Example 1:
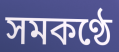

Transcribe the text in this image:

সমকণ্ঠে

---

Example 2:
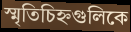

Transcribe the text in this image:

স্মৃতিচিহ্নগুলিকে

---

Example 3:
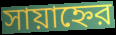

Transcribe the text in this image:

সায়াহ্নের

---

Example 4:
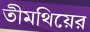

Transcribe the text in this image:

তীমথিয়ের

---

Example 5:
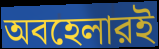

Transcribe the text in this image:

অবহেলারই